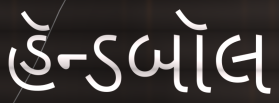
હૅન્ડબૉલ